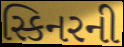
સ્કિનરની